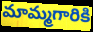
మామ్మగారికి